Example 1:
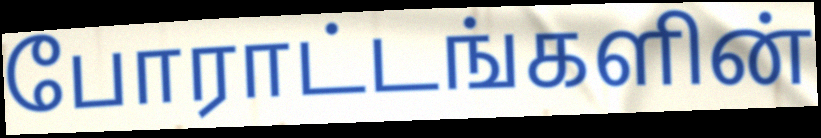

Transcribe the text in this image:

போராட்டங்களின்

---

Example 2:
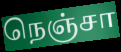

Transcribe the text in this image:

நெஞ்சா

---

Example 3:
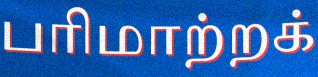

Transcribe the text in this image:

பரிமாற்றக்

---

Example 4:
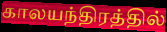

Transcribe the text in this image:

காலயந்திரத்தில்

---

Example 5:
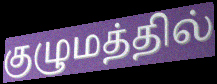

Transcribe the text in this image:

குழுமத்தில்